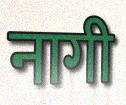
नागी